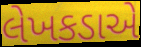
લેખકડાએ